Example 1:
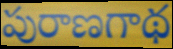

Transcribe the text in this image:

పురాణగాథ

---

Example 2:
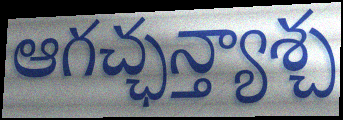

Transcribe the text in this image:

ఆగచ్ఛన్త్యాశ్చ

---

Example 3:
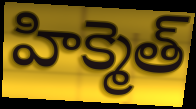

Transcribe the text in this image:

హిక్మెత్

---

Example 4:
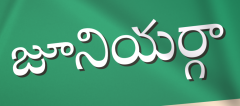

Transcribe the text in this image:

జూనియర్గా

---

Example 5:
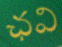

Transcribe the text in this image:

ఛవి